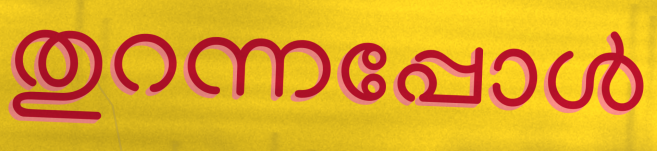
തുറന്നപ്പോൾ